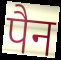
पैन